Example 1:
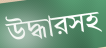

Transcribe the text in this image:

উদ্ধারসহ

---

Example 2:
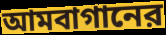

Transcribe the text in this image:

আমবাগানের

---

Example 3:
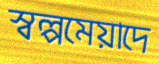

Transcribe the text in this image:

স্বল্পমেয়াদে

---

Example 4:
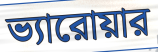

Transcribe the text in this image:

ভ্যারোয়ার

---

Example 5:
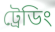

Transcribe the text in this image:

ট্রেডিং